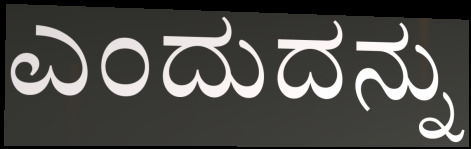
ಎಂದುದನ್ನು